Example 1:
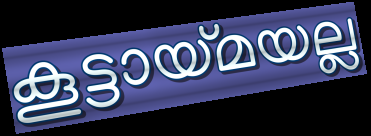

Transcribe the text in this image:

കൂട്ടായ്മയല്ല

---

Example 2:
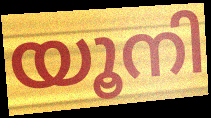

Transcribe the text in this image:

യൂനി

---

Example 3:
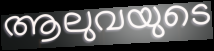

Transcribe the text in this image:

ആലുവയുടെ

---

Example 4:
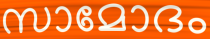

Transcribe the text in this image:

സാമോദം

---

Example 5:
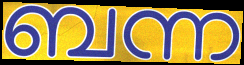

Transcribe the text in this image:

ബന്ന